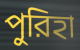
পুরিহা